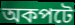
অকপটে